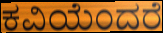
ಕವಿಯೆಂದರೆ